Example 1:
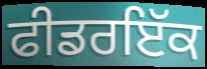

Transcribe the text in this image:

ਫੀਡਰਇੱਕ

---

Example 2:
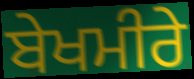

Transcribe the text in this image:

ਬੇਖਮੀਰੇ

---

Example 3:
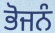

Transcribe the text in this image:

ਭੋਜਨੰ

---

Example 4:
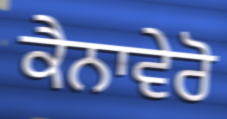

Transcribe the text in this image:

ਕੈਨਾਵੇਰੋ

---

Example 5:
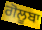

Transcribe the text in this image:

ਗੋਲੂਬਾ